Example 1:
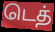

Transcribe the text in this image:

டெத்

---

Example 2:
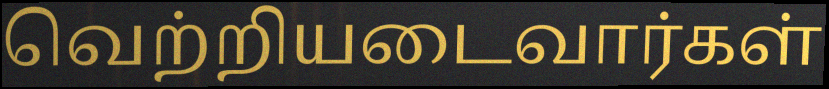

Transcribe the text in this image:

வெற்றியடைவார்கள்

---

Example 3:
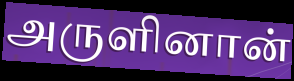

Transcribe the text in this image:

அருளினான்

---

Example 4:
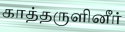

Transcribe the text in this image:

காத்தருளினீர்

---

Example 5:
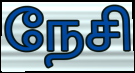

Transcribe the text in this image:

நேசி